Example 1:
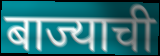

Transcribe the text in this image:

बाज्याची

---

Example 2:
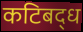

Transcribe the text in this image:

कटिबद्ध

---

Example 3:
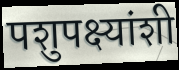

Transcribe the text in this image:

पशुपक्ष्यांशी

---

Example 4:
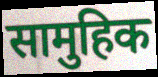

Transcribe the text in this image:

सामुहिक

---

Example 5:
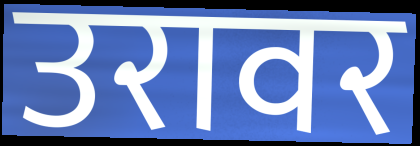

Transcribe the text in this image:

उरावर